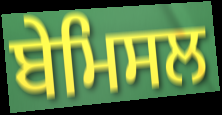
ਬੇਮਿਸਲ